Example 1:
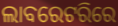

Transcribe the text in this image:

ଲାବରେଟରିରେ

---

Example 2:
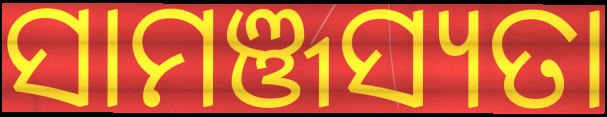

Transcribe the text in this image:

ସାମଞ୍ଜସ୍ୟତା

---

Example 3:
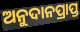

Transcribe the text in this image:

ଅନୁଦାନପ୍ରାପ୍ତ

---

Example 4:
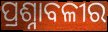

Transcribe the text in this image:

ପ୍ରଶ୍ନାବଳୀର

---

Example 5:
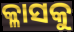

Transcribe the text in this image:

କ୍ଳାସକୁ